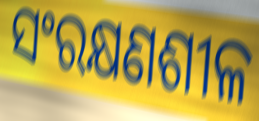
ସଂରକ୍ଷଣଶୀଳ